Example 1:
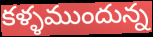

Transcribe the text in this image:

కళ్ళముందున్న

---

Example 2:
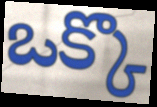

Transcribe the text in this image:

ఒక్కొ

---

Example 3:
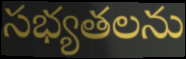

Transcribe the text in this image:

సభ్యతలను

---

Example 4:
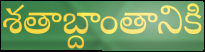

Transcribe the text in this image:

శతాబ్దాంతానికి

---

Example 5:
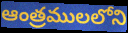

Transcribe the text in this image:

ఆంత్రములలోని